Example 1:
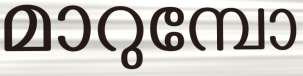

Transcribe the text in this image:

മാറുമ്പോ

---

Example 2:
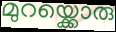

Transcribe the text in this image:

മുറയ്ക്കൊരു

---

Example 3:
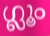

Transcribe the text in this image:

ഗ്ലൂം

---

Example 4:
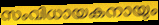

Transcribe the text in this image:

സംവിധായകനായും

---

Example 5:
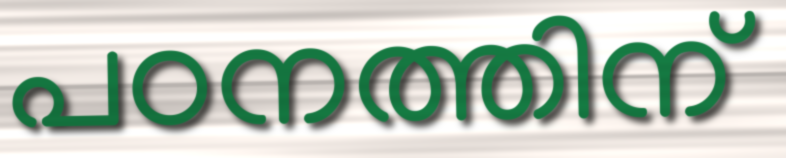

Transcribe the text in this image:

പഠനത്തിന്